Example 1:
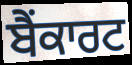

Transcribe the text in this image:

ਬੈਂਕਾਰਟ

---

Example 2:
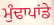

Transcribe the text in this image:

ਮੁੰਢਾਪਾਂਡੇ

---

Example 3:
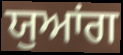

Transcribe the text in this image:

ਯੁਆਂਗ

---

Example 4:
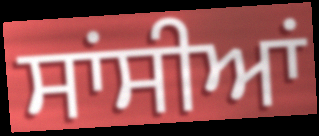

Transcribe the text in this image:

ਸਾਂਸੀਆਂ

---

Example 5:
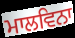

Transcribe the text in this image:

ਮਾਲਵਿਨਾ